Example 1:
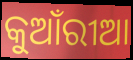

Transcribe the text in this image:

କୁଆଁରୀଆ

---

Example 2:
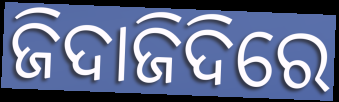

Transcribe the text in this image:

ଜିଦାଜିଦିରେ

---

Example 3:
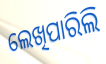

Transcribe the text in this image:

ଲେଖିପାରିଲି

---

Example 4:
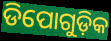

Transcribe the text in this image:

ଡିପୋଗୁଡ଼ିକ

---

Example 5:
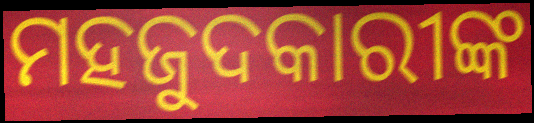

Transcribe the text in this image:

ମହଜୁଦକାରୀଙ୍କ